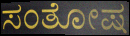
ಸಂತೋಷ